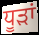
ਧੂਡ਼ਾਂ